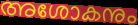
അശോകനും